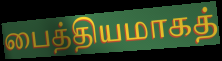
பைத்தியமாகத்